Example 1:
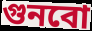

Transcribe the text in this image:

গুনবো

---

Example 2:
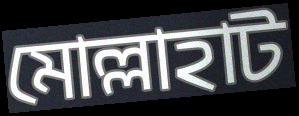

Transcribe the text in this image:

মোল্লাহাট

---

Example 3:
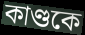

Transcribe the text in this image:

কাণ্ডকে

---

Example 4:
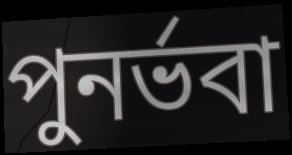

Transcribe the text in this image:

পুনর্ভবা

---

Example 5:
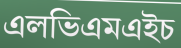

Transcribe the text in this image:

এলভিএমএইচ